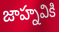
జాహ్నవికి